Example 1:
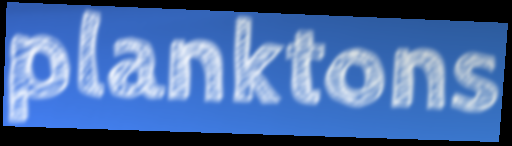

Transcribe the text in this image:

planktons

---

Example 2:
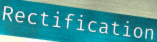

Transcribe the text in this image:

Rectification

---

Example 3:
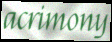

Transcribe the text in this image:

acrimony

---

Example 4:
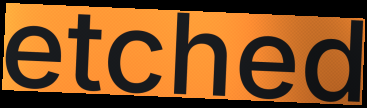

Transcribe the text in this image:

etched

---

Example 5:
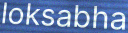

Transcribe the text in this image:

loksabha